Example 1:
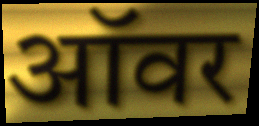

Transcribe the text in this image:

ऑवर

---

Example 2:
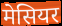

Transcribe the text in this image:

मेसियर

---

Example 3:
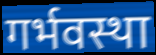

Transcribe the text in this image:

गर्भवस्था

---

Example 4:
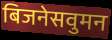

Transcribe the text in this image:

बिजनेसवुमन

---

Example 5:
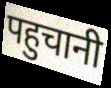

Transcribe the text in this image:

पहुचानी